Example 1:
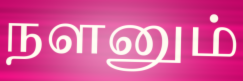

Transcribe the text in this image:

நளனும்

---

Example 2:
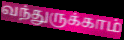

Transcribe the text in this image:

வந்துருக்காம்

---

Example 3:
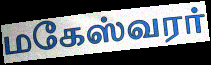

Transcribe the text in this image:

மகேஸ்வரர்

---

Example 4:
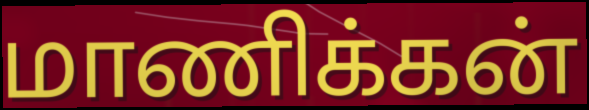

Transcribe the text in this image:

மாணிக்கன்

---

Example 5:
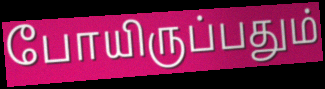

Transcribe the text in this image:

போயிருப்பதும்